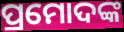
ପ୍ରମୋଦଙ୍କ